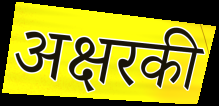
अक्षरकी